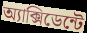
অ্যাক্সিডেন্টে